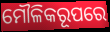
ମୌଳିକରୂପରେ